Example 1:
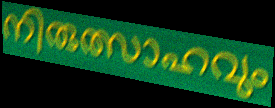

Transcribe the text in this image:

നിരുത്സാഹവും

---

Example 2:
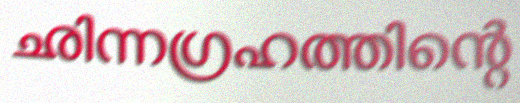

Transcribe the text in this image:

ഛിന്നഗ്രഹത്തിന്റെ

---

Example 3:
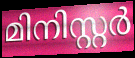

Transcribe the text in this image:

മിനിസ്റ്റർ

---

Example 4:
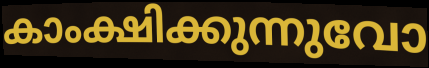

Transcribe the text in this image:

കാംക്ഷിക്കുന്നുവോ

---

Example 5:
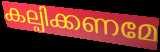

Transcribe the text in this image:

കല്പിക്കണമേ